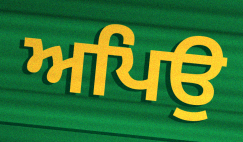
ਅਪਿਉ